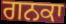
ਗਨਕਾ